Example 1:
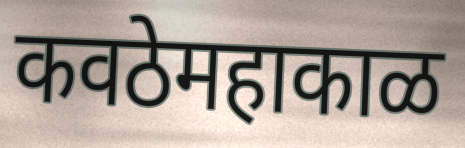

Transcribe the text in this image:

कवठेमहाकाळ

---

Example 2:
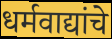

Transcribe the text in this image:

धर्मवाद्यांचे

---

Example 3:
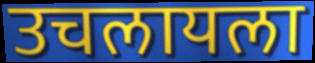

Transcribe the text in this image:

उचलायला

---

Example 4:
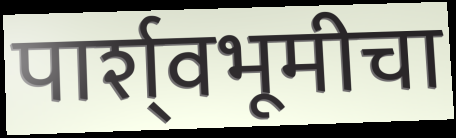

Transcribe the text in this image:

पार्श्वभूमीचा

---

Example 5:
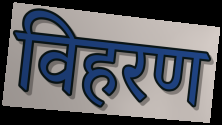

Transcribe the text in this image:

विहरण